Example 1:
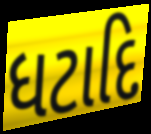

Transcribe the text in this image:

ધટાદિ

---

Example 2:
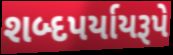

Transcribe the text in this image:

શબ્દપર્યાયરૂપે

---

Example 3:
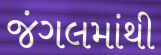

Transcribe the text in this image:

જંગલમાંથી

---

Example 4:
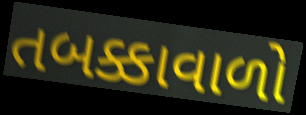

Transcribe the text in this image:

તબક્કાવાળો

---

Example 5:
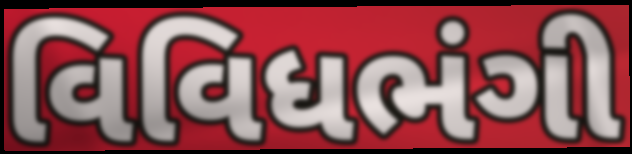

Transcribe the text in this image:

વિવિધભંગી